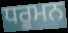
ਧਰੂਮਨ